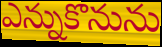
ఎన్నుకొనును